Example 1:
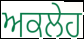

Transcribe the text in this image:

ਅਕਲੇਹ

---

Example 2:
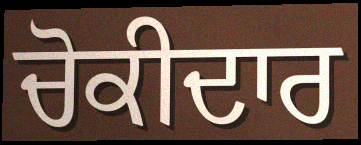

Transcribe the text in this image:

ਚੋਕੀਦਾਰ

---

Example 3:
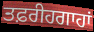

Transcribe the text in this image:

ਤਫ਼ਰੀਹਗਾਹਾਂ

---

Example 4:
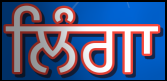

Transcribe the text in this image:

ਲਿੰਗਾ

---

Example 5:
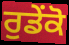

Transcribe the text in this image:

ਰੁਡੇਂਕੋ